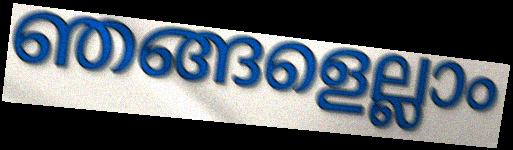
ഞങ്ങളെല്ലാം